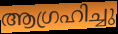
ആഗ്രഹിച്ചു